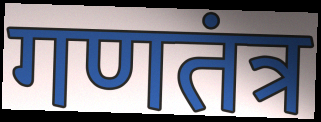
गणतंत्र